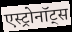
एस्ट्रोनॉट्स